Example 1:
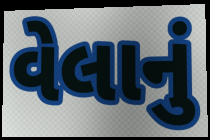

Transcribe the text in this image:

વેલાનું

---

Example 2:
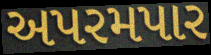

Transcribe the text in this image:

અપરમપાર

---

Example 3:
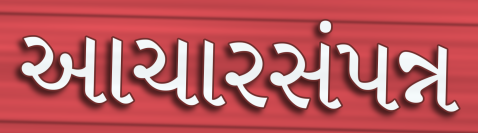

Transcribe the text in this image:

આચારસંપન્ન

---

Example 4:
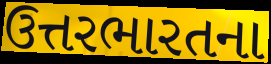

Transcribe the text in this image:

ઉત્તરભારતના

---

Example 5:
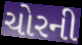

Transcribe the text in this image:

ચોરની